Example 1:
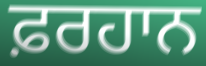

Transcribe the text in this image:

ਫ਼ਰਹਾਨ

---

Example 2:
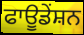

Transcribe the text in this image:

ਫਾਊਡੇਂਸ਼ਨ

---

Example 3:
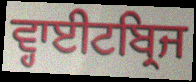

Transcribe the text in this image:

ਵ੍ਹਾਈਟਬ੍ਰਿਜ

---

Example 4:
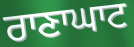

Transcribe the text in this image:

ਰਾਣਾਘਾਟ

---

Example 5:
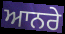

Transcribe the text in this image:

ਆਨਰੇ